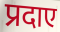
प्रदाए